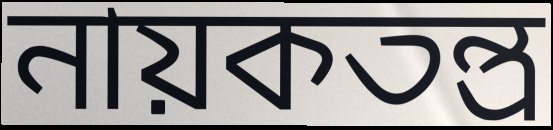
নায়কতন্ত্র